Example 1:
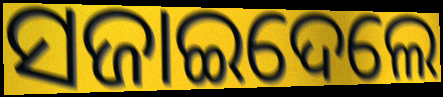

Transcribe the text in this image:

ସଜାଇଦେଲେ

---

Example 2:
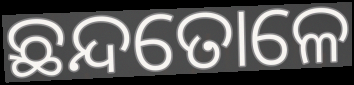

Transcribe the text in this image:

ଛନ୍ଦତୋଳେ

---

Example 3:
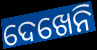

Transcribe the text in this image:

ଦେଖେନି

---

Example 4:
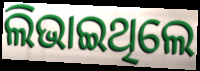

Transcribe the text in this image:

ଲିଭାଇଥିଲେ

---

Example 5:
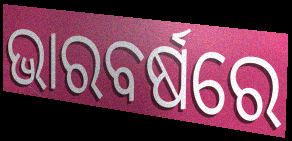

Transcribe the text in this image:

ଭାରବର୍ଷରେ